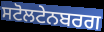
ਸਟੋਲਟੇਨਬਰਗ